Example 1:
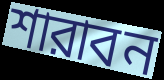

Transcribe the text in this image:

শারাবন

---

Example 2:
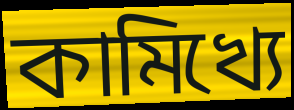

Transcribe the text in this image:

কামিখ্যে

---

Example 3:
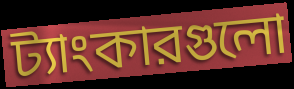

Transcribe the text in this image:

ট্যাংকারগুলো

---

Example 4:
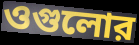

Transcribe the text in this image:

ওগুলোর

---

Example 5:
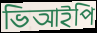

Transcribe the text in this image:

ভিআইপি